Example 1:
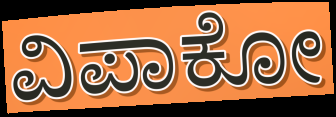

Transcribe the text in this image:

ವಿಪಾಕೋ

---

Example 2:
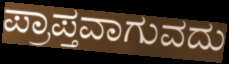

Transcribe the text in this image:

ಪ್ರಾಪ್ತವಾಗುವದು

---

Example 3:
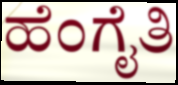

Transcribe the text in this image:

ಹೆಂಗೈತಿ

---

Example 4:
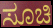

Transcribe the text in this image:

ಸೂಚಿ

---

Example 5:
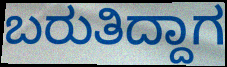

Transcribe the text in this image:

ಬರುತಿದ್ದಾಗ